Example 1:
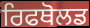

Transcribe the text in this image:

ਰਿਫਥੋਲਡ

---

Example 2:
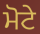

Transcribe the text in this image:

ਮੋਟੇ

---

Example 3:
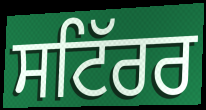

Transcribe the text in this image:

ਸਟਿੱਰਰ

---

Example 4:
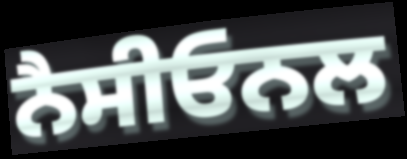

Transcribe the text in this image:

ਨੈਸੀਓਨਲ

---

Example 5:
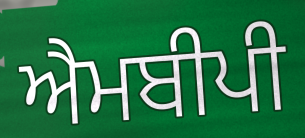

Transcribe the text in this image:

ਐਮਬੀਪੀ